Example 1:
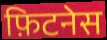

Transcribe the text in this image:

फ़िटनेस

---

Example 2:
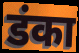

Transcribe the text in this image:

डंका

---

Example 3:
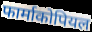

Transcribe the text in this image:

फार्माकोपियल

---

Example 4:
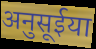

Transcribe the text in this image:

अनुसूईया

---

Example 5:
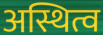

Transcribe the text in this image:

अस्थित्व